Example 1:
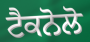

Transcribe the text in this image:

ਟੈਕਨੋਲੋ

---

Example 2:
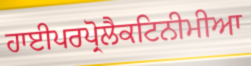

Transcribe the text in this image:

ਹਾਈਪਰਪ੍ਰੋਲੈਕਟਿਨੀਮੀਆ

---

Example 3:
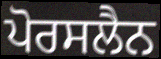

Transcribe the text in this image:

ਪੋਰਸਲੈਨ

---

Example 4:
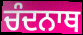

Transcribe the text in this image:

ਚੰਦਨਾਥ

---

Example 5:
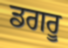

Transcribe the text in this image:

ਡਗਰੂ